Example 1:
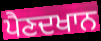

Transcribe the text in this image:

ਪੈਣਦਖਾਨ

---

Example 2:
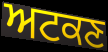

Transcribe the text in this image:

ਅਟਕਣ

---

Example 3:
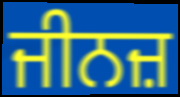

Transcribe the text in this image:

ਜੀਨਜ਼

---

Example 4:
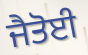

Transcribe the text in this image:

ਜੈਤੋਈ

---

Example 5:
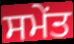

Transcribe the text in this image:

ਸਮੇਂਤ